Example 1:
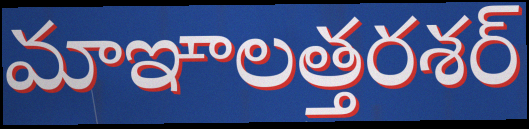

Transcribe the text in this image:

మాఞాలత్తరశర్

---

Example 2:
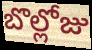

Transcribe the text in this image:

బొల్లోజు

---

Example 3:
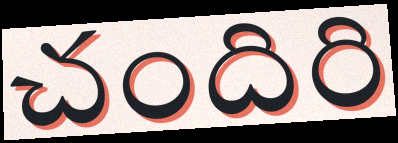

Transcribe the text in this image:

చందిరి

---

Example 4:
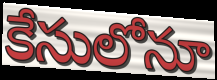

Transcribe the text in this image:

కేసులోనూ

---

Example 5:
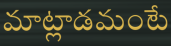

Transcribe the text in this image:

మాట్లాడమంటే